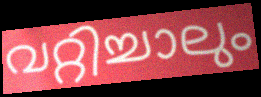
വറ്റിച്ചാലും